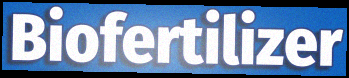
Biofertilizer